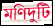
মণিদুটি